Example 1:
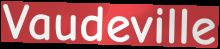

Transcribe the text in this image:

Vaudeville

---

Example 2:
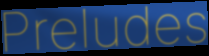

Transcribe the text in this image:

Preludes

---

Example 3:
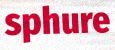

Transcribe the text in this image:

sphure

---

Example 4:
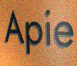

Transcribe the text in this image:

Apie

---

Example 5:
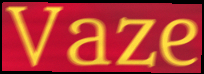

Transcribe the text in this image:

Vaze